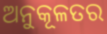
ଅନୁକୂଳତର